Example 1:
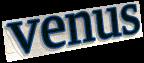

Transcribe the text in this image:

venus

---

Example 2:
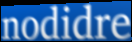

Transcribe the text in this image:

nodidre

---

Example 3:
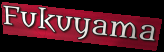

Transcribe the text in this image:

Fukuyama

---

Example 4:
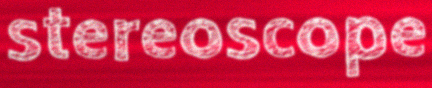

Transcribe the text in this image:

stereoscope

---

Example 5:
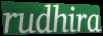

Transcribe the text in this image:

rudhira